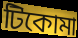
টিকোমা